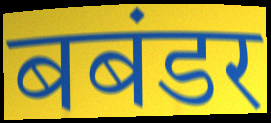
बबंडर